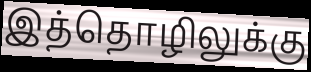
இத்தொழிலுக்கு